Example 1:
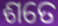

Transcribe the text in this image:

ଶତେ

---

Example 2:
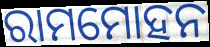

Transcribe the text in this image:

ରାମମୋହନ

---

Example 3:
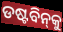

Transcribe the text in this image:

ଡଷ୍ଟବିନ୍‌କୁ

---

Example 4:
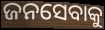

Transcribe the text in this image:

ଜନସେବାକୁ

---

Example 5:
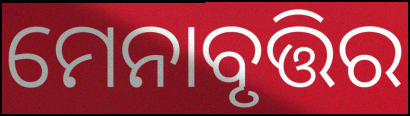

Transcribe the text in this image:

ମେନାବୃତ୍ତିର